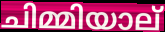
ചിമ്മിയാല്